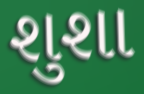
શુશા